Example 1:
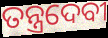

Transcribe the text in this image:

ତନ୍ତ୍ରଦେବୀ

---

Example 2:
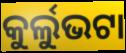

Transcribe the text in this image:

କୁର୍ଲୁଭଟା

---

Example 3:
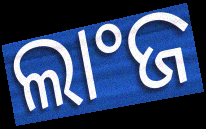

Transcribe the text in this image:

ଲାଂଜ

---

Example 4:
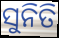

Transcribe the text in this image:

ସୁନିତି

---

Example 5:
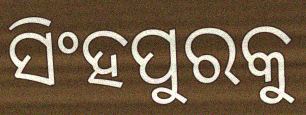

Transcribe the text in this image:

ସିଂହପୁରକୁ